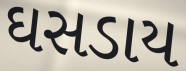
ઘસડાય